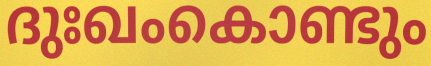
ദുഃഖംകൊണ്ടും